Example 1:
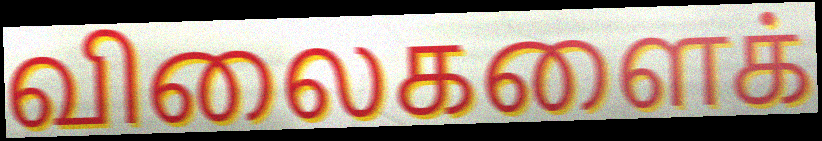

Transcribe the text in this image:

விலைகளைக்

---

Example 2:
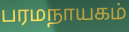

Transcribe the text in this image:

பரமநாயகம்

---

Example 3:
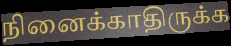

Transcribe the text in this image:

நினைக்காதிருக்க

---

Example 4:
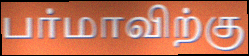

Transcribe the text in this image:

பர்மாவிற்கு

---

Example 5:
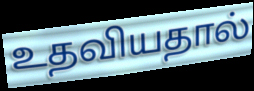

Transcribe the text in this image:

உதவியதால்